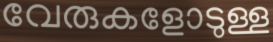
വേരുകളോടുള്ള